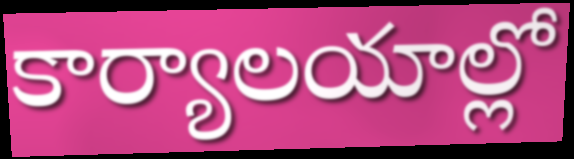
కార్యాలయాల్లో